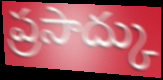
ప్రసాద్కు